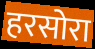
हरसोरा